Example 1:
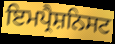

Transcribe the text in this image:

ਇਮਪ੍ਰੈਸ਼ਨਿਸਟ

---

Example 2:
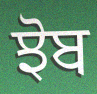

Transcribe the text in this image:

ਝੋਬ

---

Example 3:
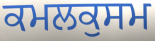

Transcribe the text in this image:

ਕਮਲਕੁਸਮ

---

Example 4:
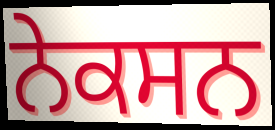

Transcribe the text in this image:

ਨੇਕਸਨ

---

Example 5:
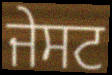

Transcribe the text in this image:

ਜੇਸਟ